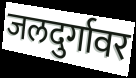
जलदुर्गावर